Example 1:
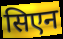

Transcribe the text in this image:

सिएन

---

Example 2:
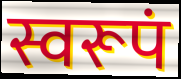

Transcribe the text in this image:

स्वरूपं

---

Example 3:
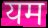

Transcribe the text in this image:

यम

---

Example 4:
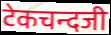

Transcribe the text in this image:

टेकचन्दजी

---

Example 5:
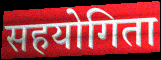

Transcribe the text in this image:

सहयोगिता